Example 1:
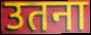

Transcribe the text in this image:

उतना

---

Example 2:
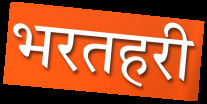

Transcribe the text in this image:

भरतहरी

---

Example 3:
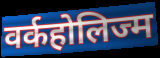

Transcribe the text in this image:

वर्कहोलिज्म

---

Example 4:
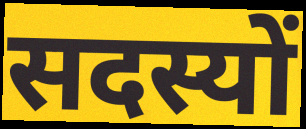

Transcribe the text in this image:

सदस्यों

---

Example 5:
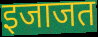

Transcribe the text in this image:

इजाजत